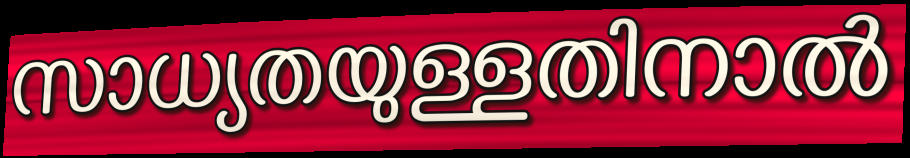
സാധ്യതയുള്ളതിനാൽ